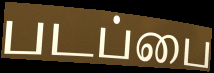
படப்பை